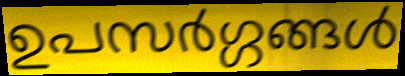
ഉപസർഗ്ഗങ്ങൾ